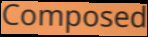
Composed